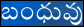
బంధువు